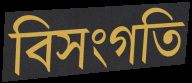
বিসংগতি